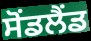
ਸੋਂਡਲੈਂਡ